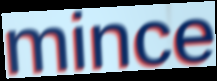
mince